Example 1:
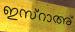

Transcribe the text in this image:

ഇസ്റാഅ്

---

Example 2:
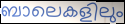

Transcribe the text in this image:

ബാലെകളിലും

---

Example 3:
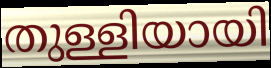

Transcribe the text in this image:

തുള്ളിയായി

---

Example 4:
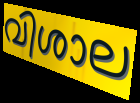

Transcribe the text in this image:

വിശാല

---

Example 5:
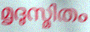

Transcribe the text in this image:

മൃദുസ്മിതം